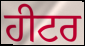
ਹੀਟਰ